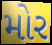
મોર